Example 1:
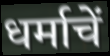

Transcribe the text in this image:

धर्माचें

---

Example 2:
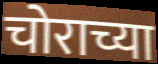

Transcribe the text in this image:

चोराच्या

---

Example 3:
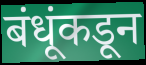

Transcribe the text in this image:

बंधूंकडून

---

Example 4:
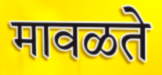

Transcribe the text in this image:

मावळते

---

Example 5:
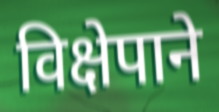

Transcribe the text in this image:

विक्षेपाने